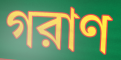
গরাণ